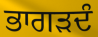
ਭਾਗੜਦੰ